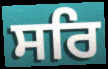
ਸਰਿ